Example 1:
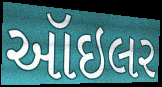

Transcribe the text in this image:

ઑઇલર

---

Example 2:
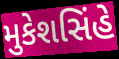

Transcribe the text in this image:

મુકેશસિંહે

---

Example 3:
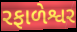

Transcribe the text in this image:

રફાળેશ્વર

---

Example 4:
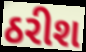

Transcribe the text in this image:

ઠરીશ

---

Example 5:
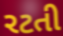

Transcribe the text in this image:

રટતી